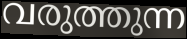
വരുത്തുന്ന